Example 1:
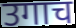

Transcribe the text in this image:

उगाच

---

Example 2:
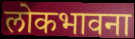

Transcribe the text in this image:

लोकभावना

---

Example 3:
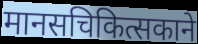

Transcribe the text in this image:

मानसचिकित्सकाने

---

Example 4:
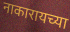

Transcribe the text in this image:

नाकारायच्या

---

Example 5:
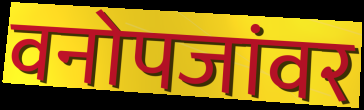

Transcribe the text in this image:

वनोपजांवर